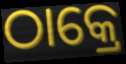
ଠାକ୍ରେ